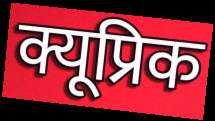
क्यूप्रिक